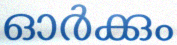
ഓർക്കും